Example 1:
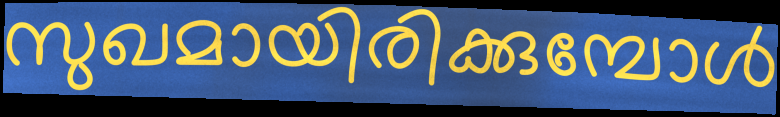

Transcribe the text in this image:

സുഖമായിരിക്കുമ്പോൾ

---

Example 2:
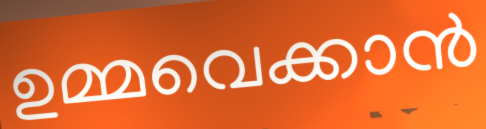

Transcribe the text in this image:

ഉമ്മവെക്കാൻ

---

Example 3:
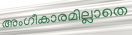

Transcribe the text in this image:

അംഗീകാരമില്ലാതെ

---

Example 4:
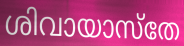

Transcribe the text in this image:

ശിവായാസ്തേ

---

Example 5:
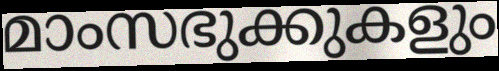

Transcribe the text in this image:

മാംസഭുക്കുകളും